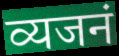
व्यजनं